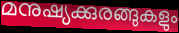
മനുഷ്യക്കുരങ്ങുകളും